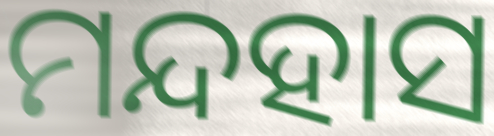
ମନ୍ଦହାସ